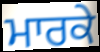
ਮਾਰਕੇ